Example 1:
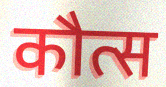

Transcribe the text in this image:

कौत्स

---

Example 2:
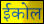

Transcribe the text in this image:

ईकोल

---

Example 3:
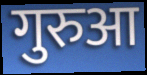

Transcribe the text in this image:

गुरुआ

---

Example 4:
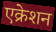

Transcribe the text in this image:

एक्रेशन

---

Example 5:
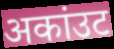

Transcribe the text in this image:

अकांउट